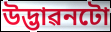
উদ্ভাৱনটো